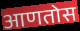
आणतोस